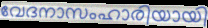
വേദനാസംഹാരിയായി